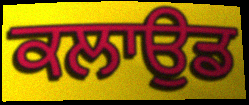
ਕਲਾਉਡ